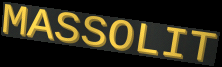
MASSOLIT